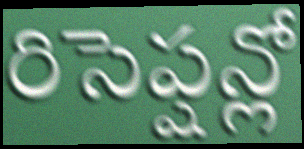
రిసెప్షన్లో